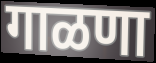
गाळणा